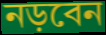
নড়বেন